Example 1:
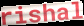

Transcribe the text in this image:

rishal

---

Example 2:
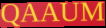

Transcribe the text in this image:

QAAUM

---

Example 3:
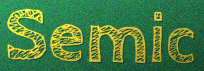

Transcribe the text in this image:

Semic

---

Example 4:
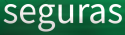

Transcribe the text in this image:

seguras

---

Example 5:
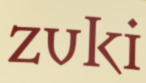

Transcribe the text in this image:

zuki